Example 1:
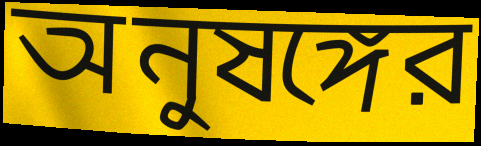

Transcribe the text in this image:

অনুষঙ্গের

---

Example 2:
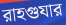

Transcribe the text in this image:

রাহগুযার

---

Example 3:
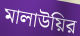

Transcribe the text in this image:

মালাউয়ির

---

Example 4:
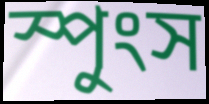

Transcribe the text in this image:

স্পুংস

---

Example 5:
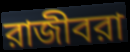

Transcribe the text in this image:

রাজীবরা